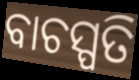
ବାଚସ୍ପତି